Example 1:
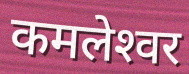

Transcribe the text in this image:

कमलेश्‍वर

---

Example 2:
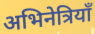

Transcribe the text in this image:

अभिनेत्रियाँ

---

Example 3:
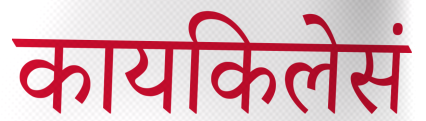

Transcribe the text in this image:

कायकिलेसं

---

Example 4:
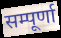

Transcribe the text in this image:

सम्पूर्णा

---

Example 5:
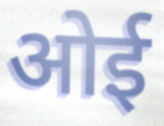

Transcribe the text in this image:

ओई